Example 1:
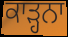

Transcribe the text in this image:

ਕਾੜ੍ਹਨਾ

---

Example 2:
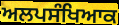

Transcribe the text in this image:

ਅਲਪਸੰਖਿਆਕ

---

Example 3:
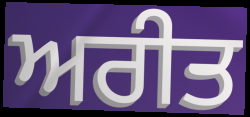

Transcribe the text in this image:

ਅਰੀਤ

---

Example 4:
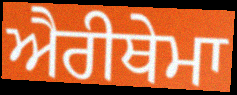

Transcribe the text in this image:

ਐਰੀਥੇਮਾ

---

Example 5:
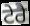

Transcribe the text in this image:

ਟੇਰੈ